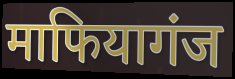
माफियागंज